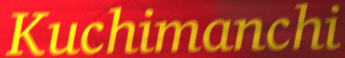
Kuchimanchi